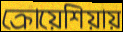
ক্রোয়েশিয়ায়